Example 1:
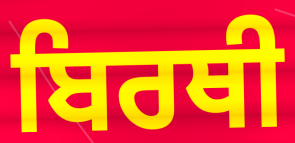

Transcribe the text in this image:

ਬਿਰਥੀ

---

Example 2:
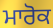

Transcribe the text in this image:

ਮਾਰੋਕ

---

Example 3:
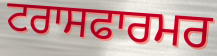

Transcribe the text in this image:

ਟਰਾਸਫਾਰਮਰ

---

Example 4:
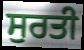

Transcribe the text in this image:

ਸੁਰਤੀ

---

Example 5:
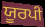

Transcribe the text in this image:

ਯੂਰਪੀ